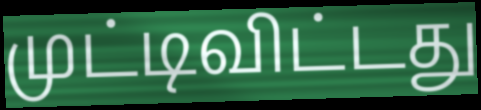
முட்டிவிட்டது